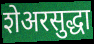
शेअरसुद्धा